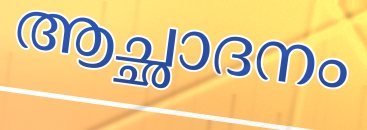
ആച്ഛാദനം